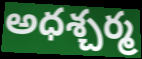
అధశ్చర్మ